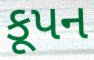
કૂપન